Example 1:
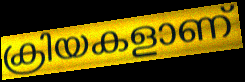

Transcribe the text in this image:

ക്രിയകളാണ്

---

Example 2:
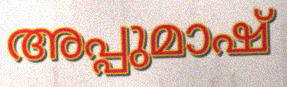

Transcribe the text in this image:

അപ്പുമാഷ്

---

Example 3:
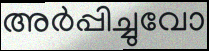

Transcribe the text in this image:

അർപ്പിച്ചുവോ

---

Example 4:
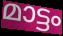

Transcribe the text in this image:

മാട്ടം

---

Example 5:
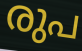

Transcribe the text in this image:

രുപ